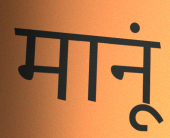
मानूं